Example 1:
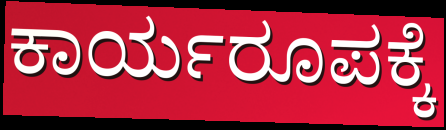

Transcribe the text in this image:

ಕಾರ್ಯರೂಪಕ್ಕೆ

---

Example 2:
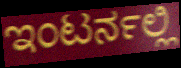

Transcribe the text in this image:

ಇಂಟರ್ನಲ್ಲಿ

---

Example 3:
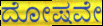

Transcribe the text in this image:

ದೋಷವೇ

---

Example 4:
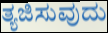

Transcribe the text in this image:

ತ್ಯಜಿಸುವುದು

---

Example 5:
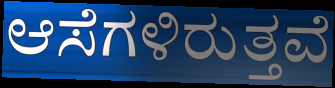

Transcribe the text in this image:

ಆಸೆಗಳಿರುತ್ತವೆ